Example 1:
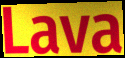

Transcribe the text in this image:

Lava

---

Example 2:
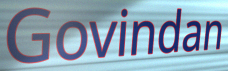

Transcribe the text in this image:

Govindan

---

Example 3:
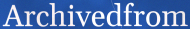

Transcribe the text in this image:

Archivedfrom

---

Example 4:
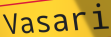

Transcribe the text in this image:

Vasari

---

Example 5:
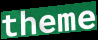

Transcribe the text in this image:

theme